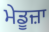
ਮੇਡੂਜ਼ਾ